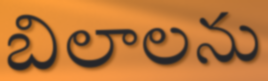
బిలాలను